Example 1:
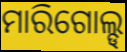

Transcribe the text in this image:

ମାରିଗୋଲ୍ଡ୍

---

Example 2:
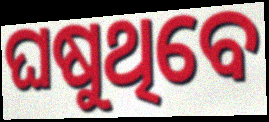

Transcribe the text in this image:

ଘଷୁଥିବେ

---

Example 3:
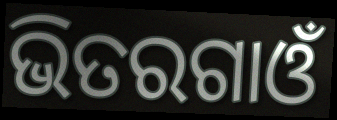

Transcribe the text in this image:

ଭିତରଗାଓଁ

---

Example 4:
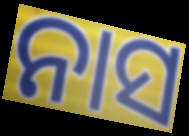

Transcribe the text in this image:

ନାସ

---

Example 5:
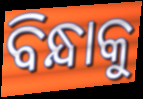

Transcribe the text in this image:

ବିନ୍ଧାକୁ